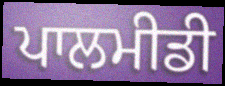
ਪਾਲਮੀਡੀ